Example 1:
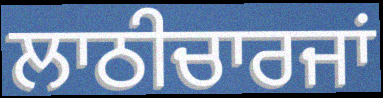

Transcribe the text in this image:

ਲਾਠੀਚਾਰਜਾਂ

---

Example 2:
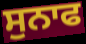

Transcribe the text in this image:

ਸੁਨਾਫ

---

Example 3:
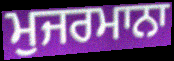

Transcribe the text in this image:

ਮੁਜਰਮਾਨਾ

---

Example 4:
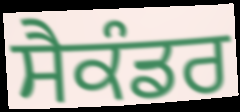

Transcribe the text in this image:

ਸੈਕੰਡਰ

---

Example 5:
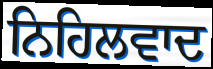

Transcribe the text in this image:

ਨਿਹਿਲਵਾਦ